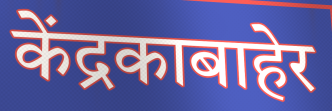
केंद्रकाबाहेर